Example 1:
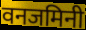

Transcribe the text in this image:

वनजमिनी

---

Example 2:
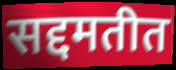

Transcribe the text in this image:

सद्दमतीत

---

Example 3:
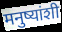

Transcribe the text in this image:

मनुष्यांशी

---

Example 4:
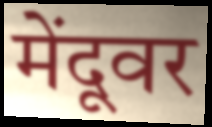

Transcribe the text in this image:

मेंदूवर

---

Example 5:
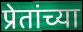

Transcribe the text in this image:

प्रेतांच्या